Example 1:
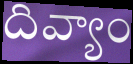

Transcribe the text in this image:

దివ్యాం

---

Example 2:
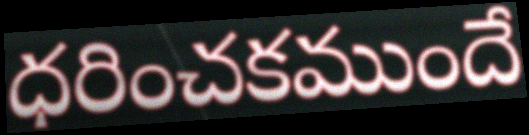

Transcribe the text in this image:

ధరించకముందే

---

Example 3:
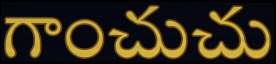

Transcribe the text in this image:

గాంచుచు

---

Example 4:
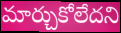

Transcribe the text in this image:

మార్చుకోలేదని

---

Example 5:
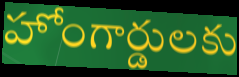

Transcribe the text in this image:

హోంగార్డులకు